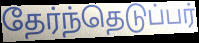
தேர்ந்தெடுப்பர்